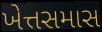
ખેત્તસમાસ